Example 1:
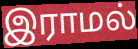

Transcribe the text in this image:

இராமல்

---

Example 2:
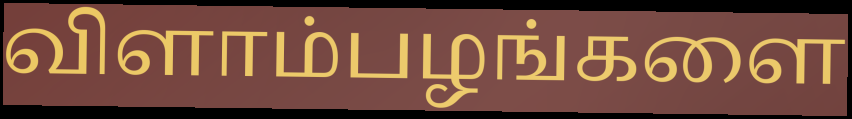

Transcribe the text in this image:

விளாம்பழங்களை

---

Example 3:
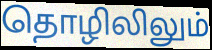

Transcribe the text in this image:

தொழிலிலும்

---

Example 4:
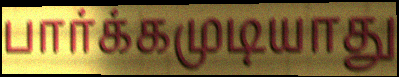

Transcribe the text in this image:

பார்க்கமுடியாது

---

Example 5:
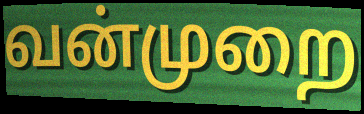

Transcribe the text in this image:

வன்முறை